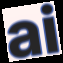
ai